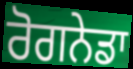
ਰੋਗਨੇਡਾ